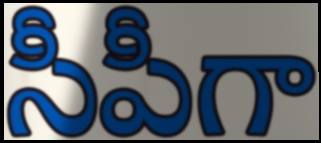
సీపీగా